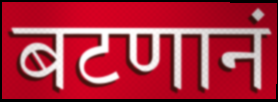
बटणानं